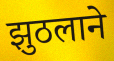
झुठलाने